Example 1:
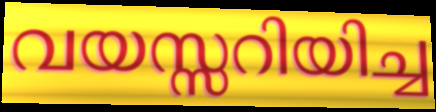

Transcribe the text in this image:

വയസ്സറിയിച്ച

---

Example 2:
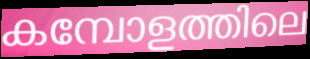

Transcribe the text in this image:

കമ്പോളത്തിലെ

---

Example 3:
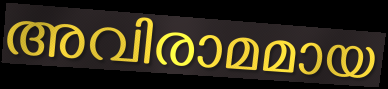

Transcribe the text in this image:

അവിരാമമായ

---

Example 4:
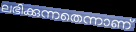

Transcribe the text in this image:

ലഭിക്കുന്നതെന്നാണ്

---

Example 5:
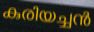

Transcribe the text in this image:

കുരിയച്ചൻ